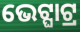
ଭେଟ୍ଘାଟ୍ର